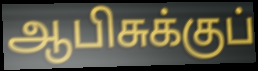
ஆபிசுக்குப்